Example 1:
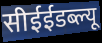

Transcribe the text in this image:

सीईईडब्ल्यू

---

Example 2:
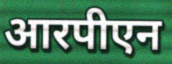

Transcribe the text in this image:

आरपीएन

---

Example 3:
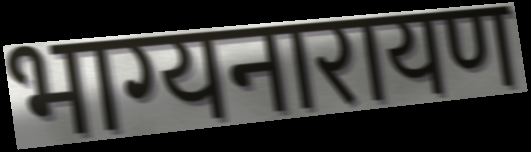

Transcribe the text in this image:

भाग्यनारायण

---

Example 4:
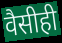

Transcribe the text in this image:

वैसीही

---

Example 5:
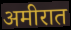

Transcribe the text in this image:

अमीरात